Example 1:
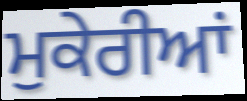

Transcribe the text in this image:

ਮੁਕੇਰੀਆਂ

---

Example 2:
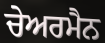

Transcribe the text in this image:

ਚੇਅਰਮੈਨ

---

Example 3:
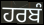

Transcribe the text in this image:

ਹਰਬੰ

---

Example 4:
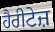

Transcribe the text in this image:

ਹੈਰੀਟੇਜ਼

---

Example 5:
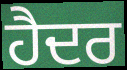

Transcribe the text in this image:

ਹੈਦਰ